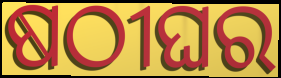
ଷଠୀଘର